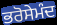
ਭਰੋਸੇਮੰਦ